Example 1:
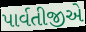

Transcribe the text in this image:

પાર્વતીજીએ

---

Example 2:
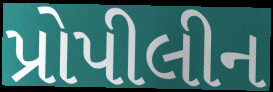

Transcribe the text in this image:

પ્રોપીલીન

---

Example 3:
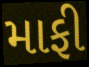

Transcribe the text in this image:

માફી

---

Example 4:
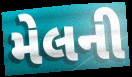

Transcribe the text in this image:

મેલની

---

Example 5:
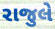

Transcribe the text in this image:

રાજુલે